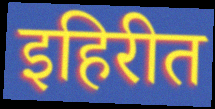
इहिरीत